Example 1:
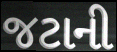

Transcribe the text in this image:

જટાની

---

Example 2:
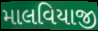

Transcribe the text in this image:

માલવિયાજી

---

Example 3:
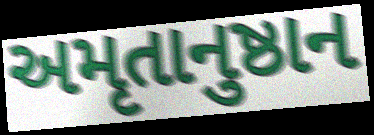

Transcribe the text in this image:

અમૃતાનુષ્ઠાન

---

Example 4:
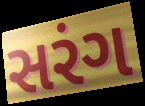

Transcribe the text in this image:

સરંગ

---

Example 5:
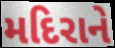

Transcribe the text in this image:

મદિરાને